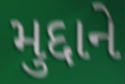
મુદ્દાને